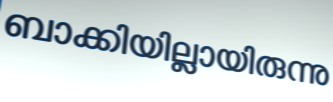
ബാക്കിയില്ലായിരുന്നു